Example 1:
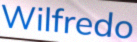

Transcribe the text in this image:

Wilfredo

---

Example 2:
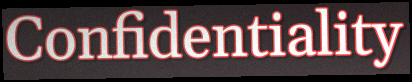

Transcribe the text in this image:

Confidentiality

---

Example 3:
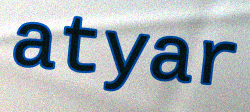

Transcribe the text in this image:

atyar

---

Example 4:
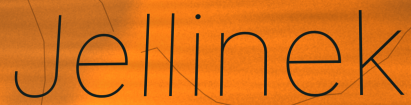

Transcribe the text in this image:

Jellinek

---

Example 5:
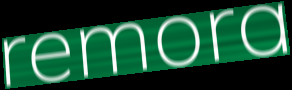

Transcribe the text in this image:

remora